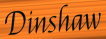
Dinshaw